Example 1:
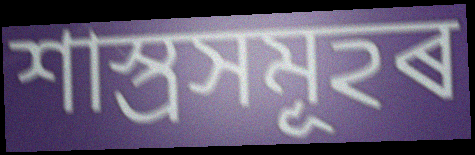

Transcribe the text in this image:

শাস্ত্ৰসমূহৰ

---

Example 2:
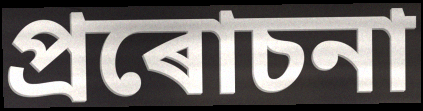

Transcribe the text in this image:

প্ৰৰোচনা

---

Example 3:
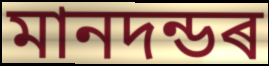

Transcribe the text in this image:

মানদন্ডৰ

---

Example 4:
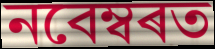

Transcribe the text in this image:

নবেম্বৰত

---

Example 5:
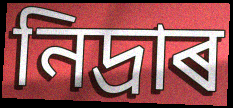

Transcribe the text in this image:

নিদ্ৰাৰ